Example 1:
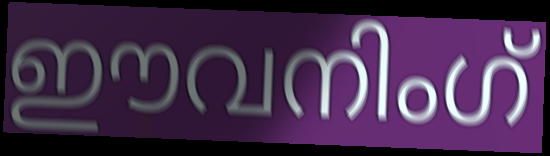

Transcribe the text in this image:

ഈവനിംഗ്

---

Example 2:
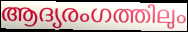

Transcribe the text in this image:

ആദ്യരംഗത്തിലും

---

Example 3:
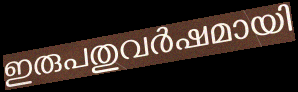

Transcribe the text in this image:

ഇരുപതുവർഷമായി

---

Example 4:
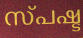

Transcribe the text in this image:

സ്‌പഷ്ട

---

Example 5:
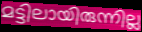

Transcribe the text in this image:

മട്ടിലായിരുന്നില്ല